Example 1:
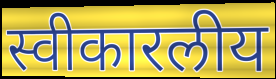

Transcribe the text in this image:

स्वीकारलीय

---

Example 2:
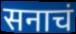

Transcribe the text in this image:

सनाचं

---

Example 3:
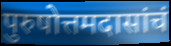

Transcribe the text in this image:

पुरुषोत्तमदासांचं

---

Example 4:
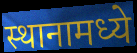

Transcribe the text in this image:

स्थानामध्ये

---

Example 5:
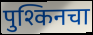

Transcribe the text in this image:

पुश्किनचा